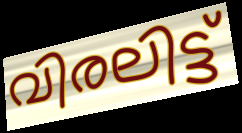
വിരലിട്ട്